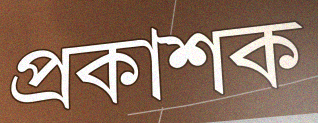
প্ৰকাশক